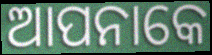
ଆପନାକେ